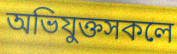
অভিযুক্তসকলে